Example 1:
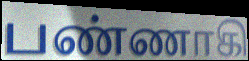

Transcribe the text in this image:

பண்ணாகி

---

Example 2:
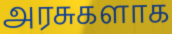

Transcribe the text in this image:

அரசுகளாக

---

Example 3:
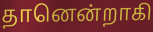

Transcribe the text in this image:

தானென்றாகி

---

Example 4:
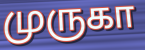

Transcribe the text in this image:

முருகா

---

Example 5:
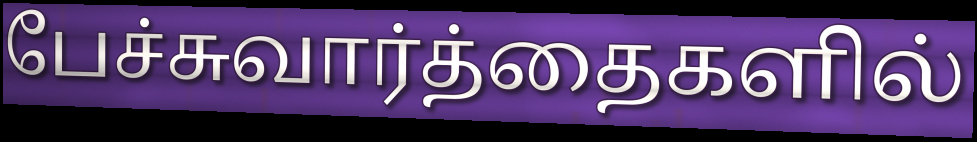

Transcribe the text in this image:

பேச்சுவார்த்தைகளில்